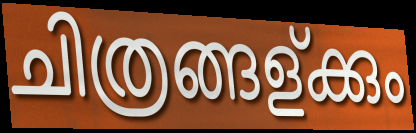
ചിത്രങ്ങള്ക്കും